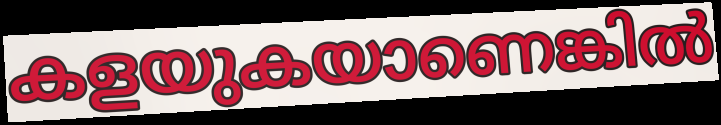
കളയുകയാണെങ്കിൽ